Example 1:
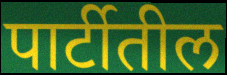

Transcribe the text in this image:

पार्टीतील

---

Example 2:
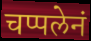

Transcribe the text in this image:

चप्पलेनं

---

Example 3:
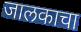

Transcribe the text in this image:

जालकाचा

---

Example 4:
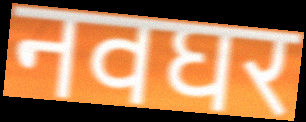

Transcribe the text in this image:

नवघर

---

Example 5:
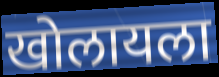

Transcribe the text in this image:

खोलायला